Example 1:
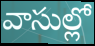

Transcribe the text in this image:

వాసుల్లో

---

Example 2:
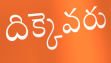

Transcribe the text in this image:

దిక్కెవరు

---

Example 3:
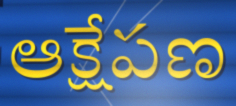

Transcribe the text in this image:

ఆక్షేపణ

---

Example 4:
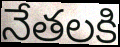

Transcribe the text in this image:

నేతలకి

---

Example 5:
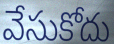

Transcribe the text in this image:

వేసుకోదు